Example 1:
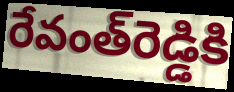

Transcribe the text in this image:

రేవంత్‌రెడ్డికి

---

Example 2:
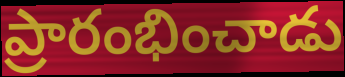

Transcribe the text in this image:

ప్రారంభించాడు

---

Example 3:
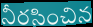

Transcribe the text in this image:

నీరసించిన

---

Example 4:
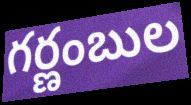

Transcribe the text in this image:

గర్ణంబుల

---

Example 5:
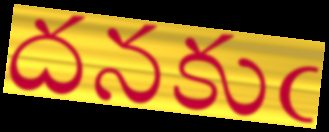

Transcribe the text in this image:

దనకుఁ